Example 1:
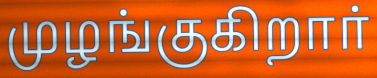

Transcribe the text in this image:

முழங்குகிறார்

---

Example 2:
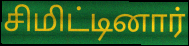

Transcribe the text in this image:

சிமிட்டினார்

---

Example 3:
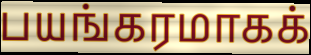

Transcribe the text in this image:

பயங்கரமாகக்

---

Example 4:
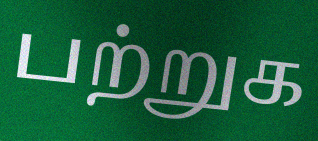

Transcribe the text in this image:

பற்றுக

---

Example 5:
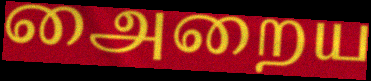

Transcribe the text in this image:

அைறைய